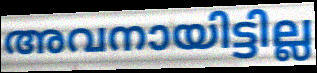
അവനായിട്ടില്ല